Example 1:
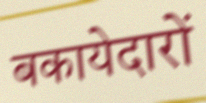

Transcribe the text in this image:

बकायेदारों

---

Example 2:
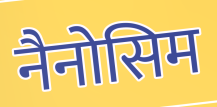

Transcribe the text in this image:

नैनोसिम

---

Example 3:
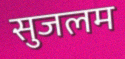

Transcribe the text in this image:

सुजलम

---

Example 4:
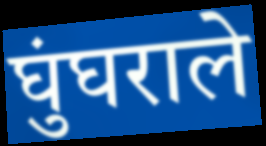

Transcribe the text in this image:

घुंघराले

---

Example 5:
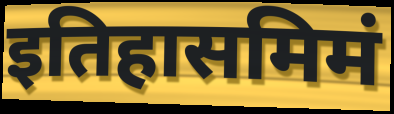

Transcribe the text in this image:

इतिहासमिमं